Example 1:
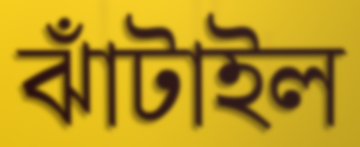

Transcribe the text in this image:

ঝাঁটাইল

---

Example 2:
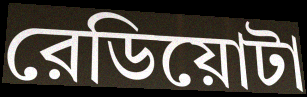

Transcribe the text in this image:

রেডিয়োটা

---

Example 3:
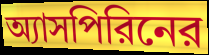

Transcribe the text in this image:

অ্যাসপিরিনের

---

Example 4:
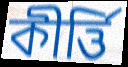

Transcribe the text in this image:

কীর্ত্তি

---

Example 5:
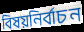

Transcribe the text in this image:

বিষয়নির্বাচন